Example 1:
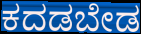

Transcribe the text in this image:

ಕದಡಬೇಡ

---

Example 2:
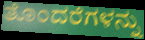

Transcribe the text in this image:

ತೊಂದರೆಗಳನ್ನು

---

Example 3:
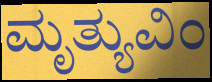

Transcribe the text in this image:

ಮೃತ್ಯುವಿಂ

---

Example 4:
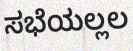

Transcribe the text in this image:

ಸಭೆಯಲ್ಲಲ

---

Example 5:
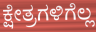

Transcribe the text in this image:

ಕ್ಷೇತ್ರಗಳಿಗೆಲ್ಲ